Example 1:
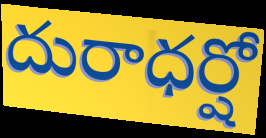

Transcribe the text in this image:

దురాధర్షో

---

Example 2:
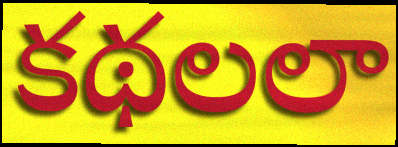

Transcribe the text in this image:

కథలలా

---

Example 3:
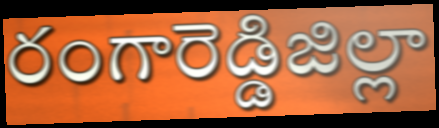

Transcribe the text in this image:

రంగారెడ్డిజిల్లా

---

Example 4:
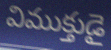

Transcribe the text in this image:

విముక్తుడై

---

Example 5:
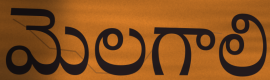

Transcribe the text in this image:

మెలగాలి